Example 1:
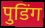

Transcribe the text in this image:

पुडिंग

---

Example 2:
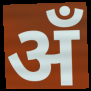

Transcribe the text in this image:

अँ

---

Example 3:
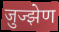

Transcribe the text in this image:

जुज्झेण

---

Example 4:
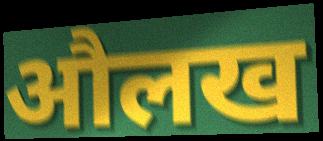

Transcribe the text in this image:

औलख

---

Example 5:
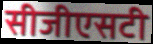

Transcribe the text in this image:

सीजीएसटी